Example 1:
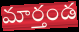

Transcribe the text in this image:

మార్తండ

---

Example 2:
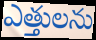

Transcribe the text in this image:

ఎత్తులను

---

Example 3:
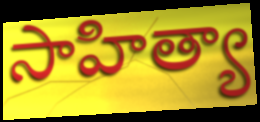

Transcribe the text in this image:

సాహిత్యా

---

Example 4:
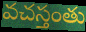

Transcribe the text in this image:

వచస్తంతు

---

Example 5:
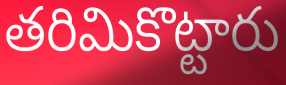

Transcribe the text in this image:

తరిమికొట్టారు